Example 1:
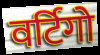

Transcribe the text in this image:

वर्टिगो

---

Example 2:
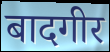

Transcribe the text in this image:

बादगीर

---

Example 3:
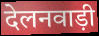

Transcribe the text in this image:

देलनवाड़ी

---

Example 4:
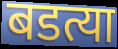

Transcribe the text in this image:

बडत्या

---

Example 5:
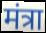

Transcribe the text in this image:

मंत्रा